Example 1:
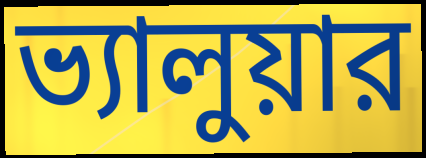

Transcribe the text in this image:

ভ্যালুয়ার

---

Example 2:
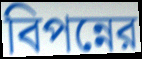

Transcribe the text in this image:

বিপন্নের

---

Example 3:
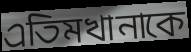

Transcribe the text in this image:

এতিমখানাকে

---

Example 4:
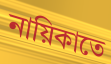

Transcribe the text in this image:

নায়িকাতে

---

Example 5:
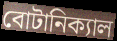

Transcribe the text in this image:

বোটানিক্যাল